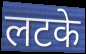
लटके